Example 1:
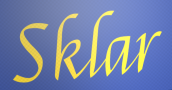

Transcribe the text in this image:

Sklar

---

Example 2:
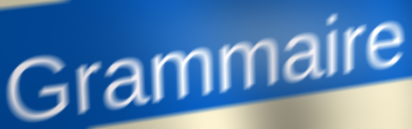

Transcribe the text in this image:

Grammaire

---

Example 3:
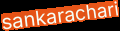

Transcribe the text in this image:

sankarachari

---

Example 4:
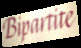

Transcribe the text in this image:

Bipartite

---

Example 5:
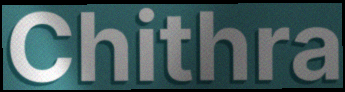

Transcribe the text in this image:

Chithra